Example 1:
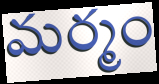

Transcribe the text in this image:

మర్మం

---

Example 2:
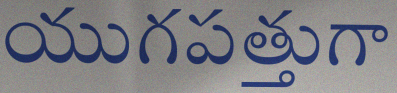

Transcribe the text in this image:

యుగపత్తుగా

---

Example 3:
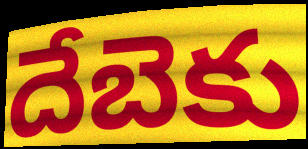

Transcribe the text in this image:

దేబెకు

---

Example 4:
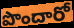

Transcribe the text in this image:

పొందారో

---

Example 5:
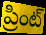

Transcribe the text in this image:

ప్రింట్